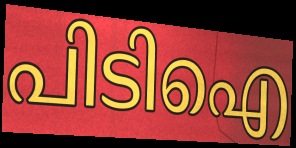
പിടിഐ